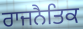
ਰਾਜਨੈਤਿਕ